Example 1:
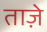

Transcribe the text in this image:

ताज़े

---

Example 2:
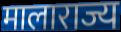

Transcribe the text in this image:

मालाराज्य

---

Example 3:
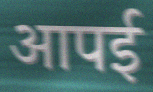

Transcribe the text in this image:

आपई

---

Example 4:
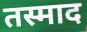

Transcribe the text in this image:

तस्माद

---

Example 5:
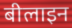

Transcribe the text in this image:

बीलाइन